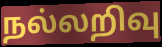
நல்லறிவு